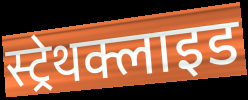
स्ट्रेथक्लाइड